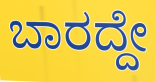
ಬಾರದ್ದೇ